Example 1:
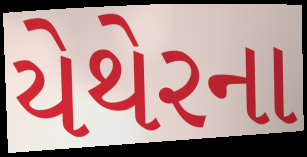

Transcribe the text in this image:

યેથેરના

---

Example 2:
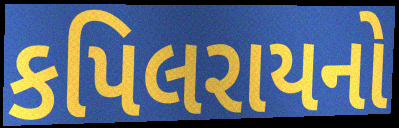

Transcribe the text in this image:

કપિલરાયનો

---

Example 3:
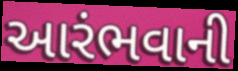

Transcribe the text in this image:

આરંભવાની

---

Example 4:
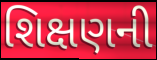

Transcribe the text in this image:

શિક્ષણની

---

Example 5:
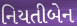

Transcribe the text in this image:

નિયતીબેન